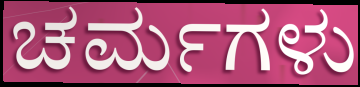
ಚರ್ಮಗಳು